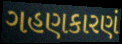
ગહણકારણં